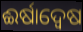
ଈର୍ଷାଦ୍ଵେଷ